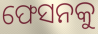
ଫେସନକୁ